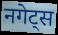
नगेट्स